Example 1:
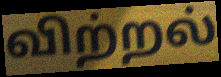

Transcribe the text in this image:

விற்றல்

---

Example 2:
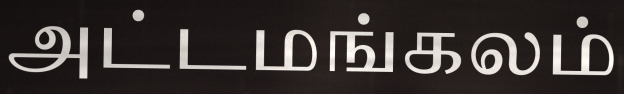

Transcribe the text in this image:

அட்டமங்கலம்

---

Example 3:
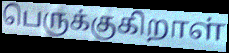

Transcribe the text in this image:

பெருக்குகிறாள்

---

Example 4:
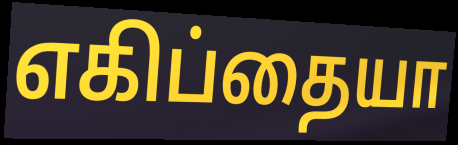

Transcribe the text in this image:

எகிப்தையா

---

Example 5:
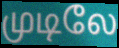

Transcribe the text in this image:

முடிலே